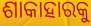
ଶାକାହାରକୁ